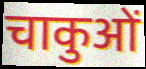
चाकुओं